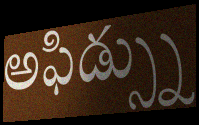
అఫిడ్స్ను